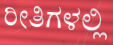
ರೀತಿಗಳಲ್ಲಿ